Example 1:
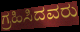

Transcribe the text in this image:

ಗ್ರಹಿಸಿದವರು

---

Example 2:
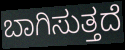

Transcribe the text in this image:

ಬಾಗಿಸುತ್ತದೆ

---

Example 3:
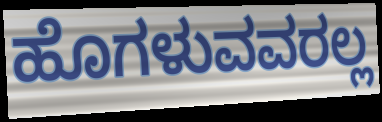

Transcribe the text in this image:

ಹೊಗಳುವವರಲ್ಲ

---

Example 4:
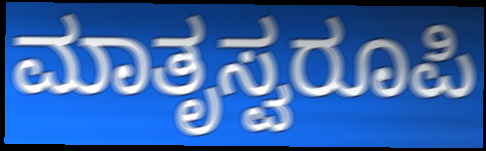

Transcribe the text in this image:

ಮಾತೃಸ್ವರೂಪಿ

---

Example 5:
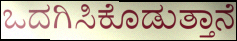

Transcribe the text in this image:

ಒದಗಿಸಿಕೊಡುತ್ತಾನೆ